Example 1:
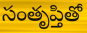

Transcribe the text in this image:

సంతృప్తితో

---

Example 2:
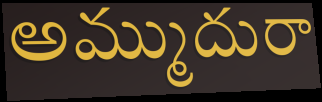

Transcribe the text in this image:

అమ్ముదురా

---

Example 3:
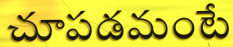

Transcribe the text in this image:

చూపడమంటే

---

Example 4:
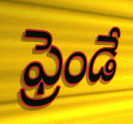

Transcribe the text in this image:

ఫ్రెండే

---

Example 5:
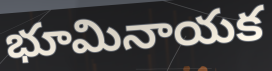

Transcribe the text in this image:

భూమినాయక